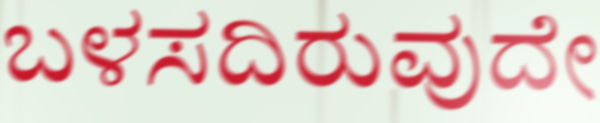
ಬಳಸದಿರುವುದೇ